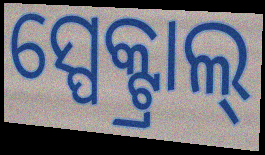
ସ୍ପେକ୍ଟ୍ରାଲ୍